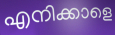
എനിക്കാളെ